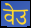
वेउ